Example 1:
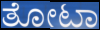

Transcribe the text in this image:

ತೋಟಾ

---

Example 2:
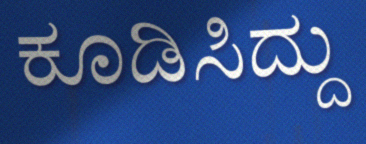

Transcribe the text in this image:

ಕೂಡಿಸಿದ್ದು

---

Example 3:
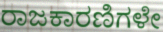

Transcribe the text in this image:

ರಾಜಕಾರಣಿಗಳೇ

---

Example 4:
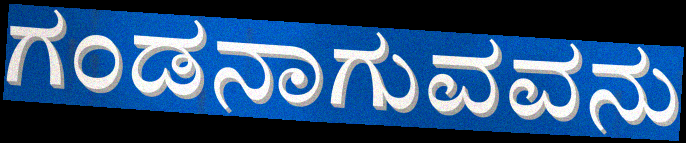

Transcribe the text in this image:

ಗಂಡನಾಗುವವನು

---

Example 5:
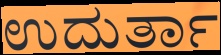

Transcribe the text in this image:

ಉದುರ್ತಾ